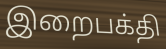
இறைபக்தி